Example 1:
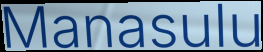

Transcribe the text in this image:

Manasulu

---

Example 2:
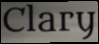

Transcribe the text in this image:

Clary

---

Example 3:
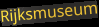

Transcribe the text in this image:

Rijksmuseum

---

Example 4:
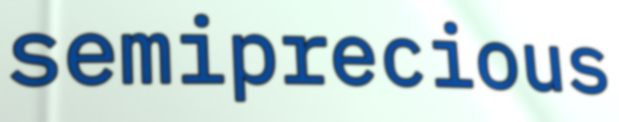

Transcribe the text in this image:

semiprecious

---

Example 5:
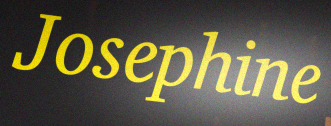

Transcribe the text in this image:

Josephine